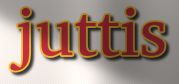
juttis